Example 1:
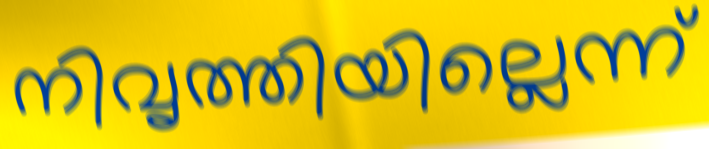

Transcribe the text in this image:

നിവൃത്തിയില്ലെന്ന്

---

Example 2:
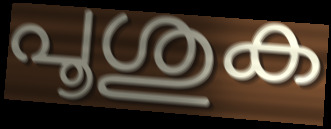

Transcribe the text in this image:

പൂശുക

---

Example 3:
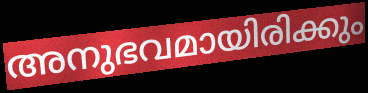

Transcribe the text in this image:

അനുഭവമായിരിക്കും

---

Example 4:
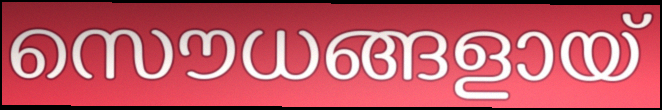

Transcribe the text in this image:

സൌധങ്ങളായ്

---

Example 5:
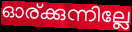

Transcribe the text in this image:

ഓര്ക്കുന്നില്ലേ